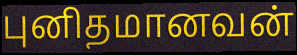
புனிதமானவன்